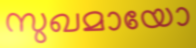
സുഖമായോ